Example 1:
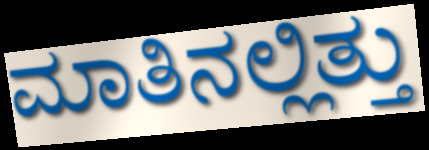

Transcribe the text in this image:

ಮಾತಿನಲ್ಲಿತ್ತು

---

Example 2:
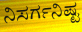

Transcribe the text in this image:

ನಿಸರ್ಗನಿಷ್ಟ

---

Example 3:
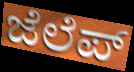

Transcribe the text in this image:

ಜೆಲೆಪ್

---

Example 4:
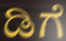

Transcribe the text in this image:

ಡಿಗೆ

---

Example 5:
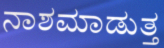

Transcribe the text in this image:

ನಾಶಮಾಡುತ್ತ